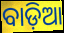
ବାଡ଼ିଆ